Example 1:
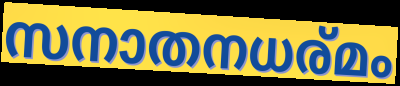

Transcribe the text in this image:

സനാതനധര്മം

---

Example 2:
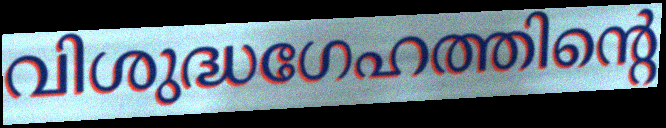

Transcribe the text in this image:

വിശുദ്ധഗേഹത്തിന്റെ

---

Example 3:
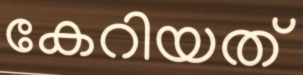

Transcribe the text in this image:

കേറിയത്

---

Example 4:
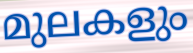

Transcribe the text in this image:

മുലകളും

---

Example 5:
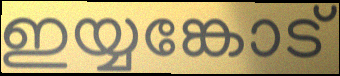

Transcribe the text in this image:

ഇയ്യങ്കോട്